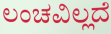
ಲಂಚವಿಲ್ಲದೆ